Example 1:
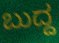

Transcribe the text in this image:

ಬುದ್ದ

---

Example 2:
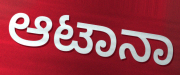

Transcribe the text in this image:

ಆಟಾನಾ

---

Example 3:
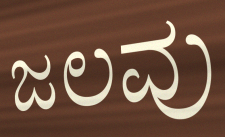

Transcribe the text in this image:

ಜಲವು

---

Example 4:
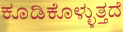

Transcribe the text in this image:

ಕೂಡಿಕೊಳ್ಳುತ್ತದೆ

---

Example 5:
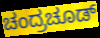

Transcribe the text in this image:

ಚಂದ್ರಚೂಡ್